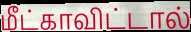
மீட்காவிட்டால்